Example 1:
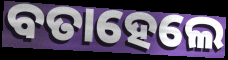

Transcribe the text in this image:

ବତାହେଲେ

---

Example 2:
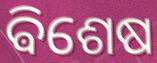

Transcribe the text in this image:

ଵିଶେଷ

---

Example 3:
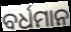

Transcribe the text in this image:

ବର୍ଧମାନ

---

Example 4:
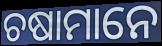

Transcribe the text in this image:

ଚଷାମାନେ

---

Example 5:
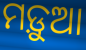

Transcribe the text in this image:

ମଡ଼ୁଆ